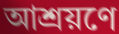
আশ্রয়ণে